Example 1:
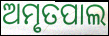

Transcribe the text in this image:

ଅମୃତପାଲ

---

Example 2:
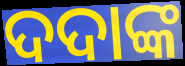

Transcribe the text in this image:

ଦଦାଙ୍କ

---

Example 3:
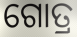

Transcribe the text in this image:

ଗୋତ୍ର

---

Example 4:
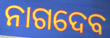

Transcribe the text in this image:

ନାଗଦେବ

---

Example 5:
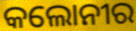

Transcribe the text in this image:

କଲୋନୀର